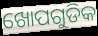
ଖୋପଗୁଡିକ